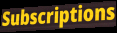
Subscriptions